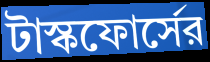
টাস্কফোর্সের